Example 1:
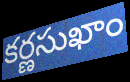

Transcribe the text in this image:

కర్ణసుఖాం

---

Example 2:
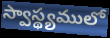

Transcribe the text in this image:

స్వాస్థ్యములో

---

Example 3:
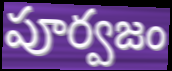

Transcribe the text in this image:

పూర్వజం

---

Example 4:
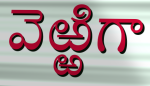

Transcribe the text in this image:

వెఱ్ఱిగా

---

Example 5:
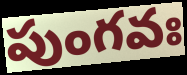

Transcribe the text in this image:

పుంగవః